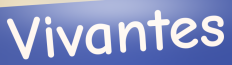
Vivantes